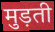
मुड़ती